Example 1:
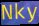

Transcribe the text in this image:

Nky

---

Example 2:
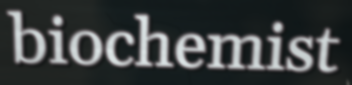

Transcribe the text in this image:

biochemist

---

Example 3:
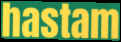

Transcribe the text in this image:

hastam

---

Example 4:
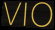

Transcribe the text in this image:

VIO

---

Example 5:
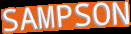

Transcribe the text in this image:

SAMPSON